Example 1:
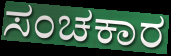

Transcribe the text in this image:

ಸಂಚಕಾರ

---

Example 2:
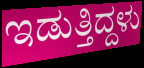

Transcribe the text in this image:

ಇಡುತ್ತಿದ್ದಳು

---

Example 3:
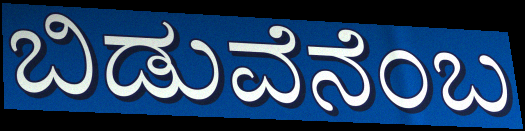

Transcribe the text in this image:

ಬಿಡುವೆನೆಂಬ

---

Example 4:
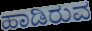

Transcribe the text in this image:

ಹಾಡಿರುವ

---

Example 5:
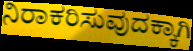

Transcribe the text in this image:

ನಿರಾಕರಿಸುವುದಕ್ಕಾಗಿ